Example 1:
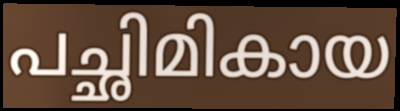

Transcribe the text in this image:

പച്ഛിമികായ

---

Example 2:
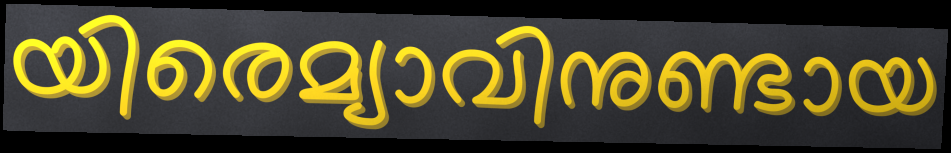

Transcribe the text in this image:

യിരെമ്യാവിനുണ്ടായ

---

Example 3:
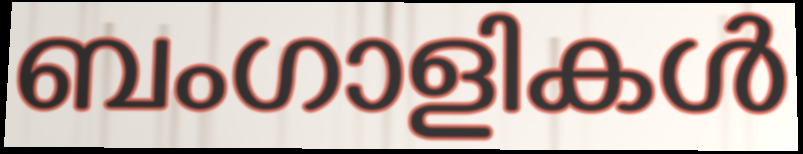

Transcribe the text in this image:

ബംഗാളികൾ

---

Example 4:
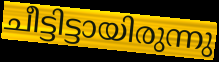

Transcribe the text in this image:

ചീട്ടിട്ടായിരുന്നു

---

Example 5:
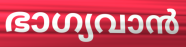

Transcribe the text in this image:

ഭാഗ്യവാൻ